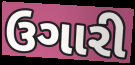
ઉગારી